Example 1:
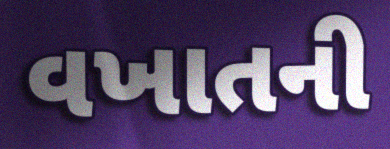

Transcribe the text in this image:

વખાતની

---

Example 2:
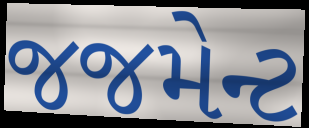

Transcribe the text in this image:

જજમેન્ટ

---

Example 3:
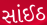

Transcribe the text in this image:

સાંઈઠ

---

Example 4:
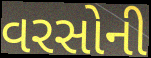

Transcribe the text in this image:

વરસોની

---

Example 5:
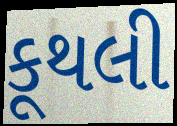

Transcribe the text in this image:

કૂથલી